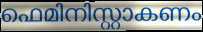
ഫെമിനിസ്റ്റാകണം